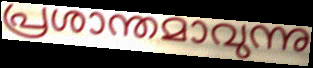
പ്രശാന്തമാവുന്നു